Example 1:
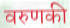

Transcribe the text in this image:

वरुणकी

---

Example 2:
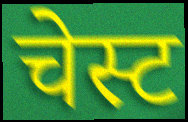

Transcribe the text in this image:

चेस्ट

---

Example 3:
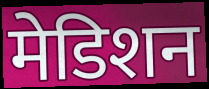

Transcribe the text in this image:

मेडिशन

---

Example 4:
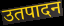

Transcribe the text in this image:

उतपादन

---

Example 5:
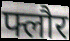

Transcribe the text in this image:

फ्लौर